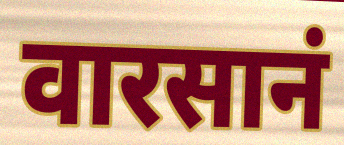
वारसानं